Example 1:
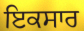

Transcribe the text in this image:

ਇਕਸਾਰ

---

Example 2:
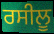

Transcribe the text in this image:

ਰਸੀਲੂ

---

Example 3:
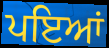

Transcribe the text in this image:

ਪਇਆਂ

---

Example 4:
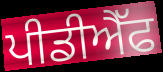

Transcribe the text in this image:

ਪੀਡੀਐੱਫ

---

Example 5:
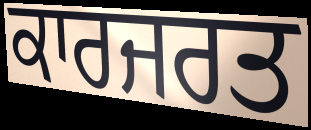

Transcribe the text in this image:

ਕਾਰਜਰਤ